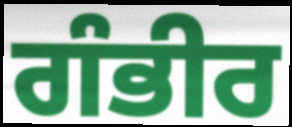
ਗੰਭੀਰ